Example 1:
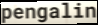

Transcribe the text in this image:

pengalin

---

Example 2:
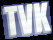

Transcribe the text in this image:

TVK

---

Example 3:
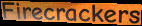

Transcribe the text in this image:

Firecrackers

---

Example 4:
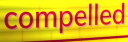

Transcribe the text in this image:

compelled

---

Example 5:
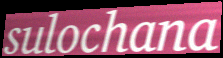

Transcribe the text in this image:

sulochana